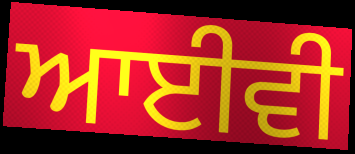
ਆਈਵੀ